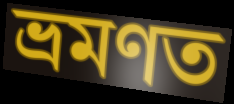
ভ্ৰমণত